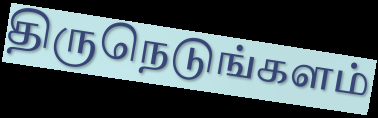
திருநெடுங்களம்